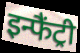
इन्फैंट्री